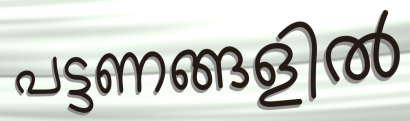
പട്ടണങ്ങളിൽ